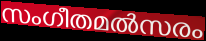
സംഗീതമൽസരം